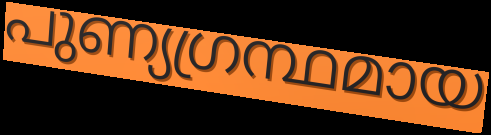
പുണ്യഗ്രന്ഥമായ